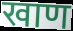
खाण